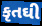
કૃતઘી